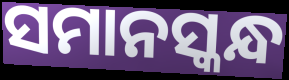
ସମାନସ୍କନ୍ଧ